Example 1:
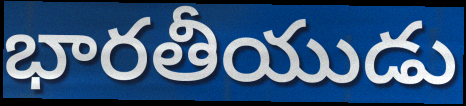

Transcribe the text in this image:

భారతీయుడు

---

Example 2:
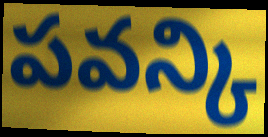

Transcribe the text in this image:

పవన్కి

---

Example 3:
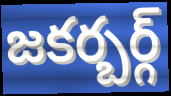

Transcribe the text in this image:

జకర్బర్గ్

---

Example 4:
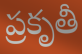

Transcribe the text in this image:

ప్రకృతీ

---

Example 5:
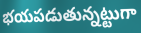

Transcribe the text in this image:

భయపడుతున్నట్టుగా